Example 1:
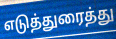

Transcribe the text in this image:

எடுத்துரைத்து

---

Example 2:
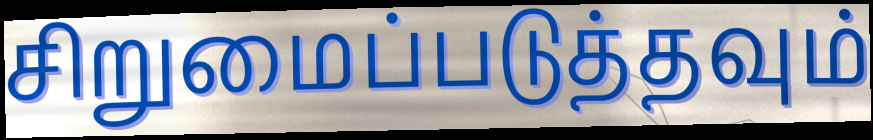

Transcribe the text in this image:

சிறுமைப்படுத்தவும்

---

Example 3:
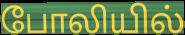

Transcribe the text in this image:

போலியில்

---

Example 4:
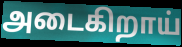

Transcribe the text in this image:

அடைகிறாய்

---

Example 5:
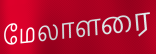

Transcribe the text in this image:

மேலாளரை